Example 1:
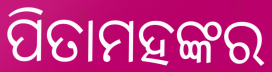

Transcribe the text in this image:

ପିତାମହଙ୍କର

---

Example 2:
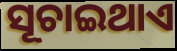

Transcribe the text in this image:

ସୂଚାଇଥାଏ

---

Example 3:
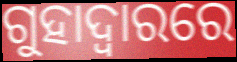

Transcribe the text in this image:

ଗୁହାଦ୍ଵାରରେ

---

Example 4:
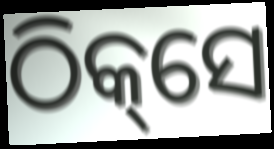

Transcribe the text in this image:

ଠିକ୍‌ସେ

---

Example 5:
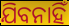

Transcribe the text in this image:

ଯିବନାହିଁ